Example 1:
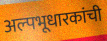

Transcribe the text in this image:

अल्पभूधारकांची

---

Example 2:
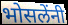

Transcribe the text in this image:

भोसलेंनी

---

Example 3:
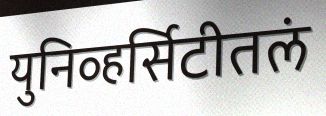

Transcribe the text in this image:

युनिव्हर्सिटीतलं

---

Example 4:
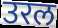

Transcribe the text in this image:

उरल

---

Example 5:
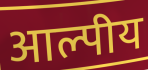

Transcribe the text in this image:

आल्पीय